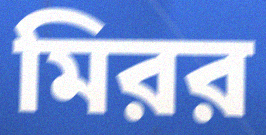
মিরর